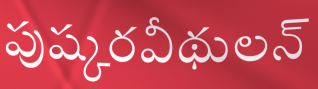
పుష్కరవీథులన్